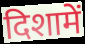
दिशामें